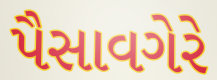
પૈસાવગેરે